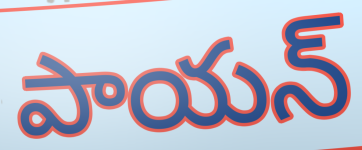
పాయన్